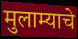
मुलाम्याचे